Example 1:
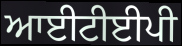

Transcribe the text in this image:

ਆਈਟੀਈਪੀ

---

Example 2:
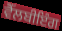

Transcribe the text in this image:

ਵੈੱਲਬੀਇੰਗ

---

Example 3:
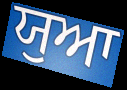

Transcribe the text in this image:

ਯੁਆ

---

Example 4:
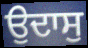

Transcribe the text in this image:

ਉਦਾਸੁ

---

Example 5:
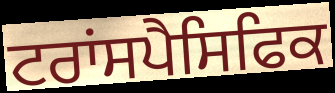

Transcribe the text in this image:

ਟਰਾਂਸਪੈਸਿਫਿਕ